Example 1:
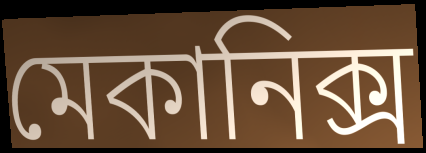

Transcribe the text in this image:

মেকানিক্স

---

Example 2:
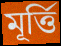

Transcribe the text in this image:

মূর্ত্তি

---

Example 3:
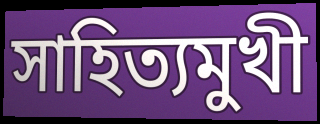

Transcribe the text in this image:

সাহিত্যমুখী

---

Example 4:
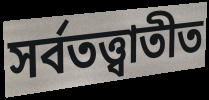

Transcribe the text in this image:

সর্বতত্ত্বাতীত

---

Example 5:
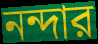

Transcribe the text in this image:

নন্দার